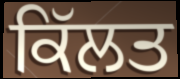
ਕਿੱਲਤ